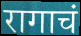
रागाचं